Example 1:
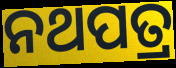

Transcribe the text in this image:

ନଥପତ୍ର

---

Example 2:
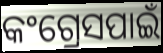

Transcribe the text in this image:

କଂଗ୍ରେସପାଇଁ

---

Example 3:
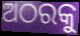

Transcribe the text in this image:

ଅଠରକୁ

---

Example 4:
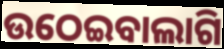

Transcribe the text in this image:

ଉଠେଇବାଲାଗି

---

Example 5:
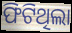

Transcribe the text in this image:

ଫିଟିଥିଲା